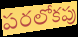
పరలోకపు